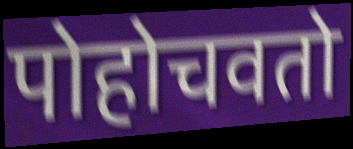
पोहोचवतो